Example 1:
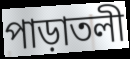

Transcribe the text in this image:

পাড়াতলী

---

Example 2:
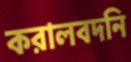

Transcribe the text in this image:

করালবদনি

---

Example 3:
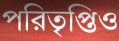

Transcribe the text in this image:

পরিতৃপ্তিও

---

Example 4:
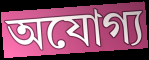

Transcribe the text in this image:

অযোগ্য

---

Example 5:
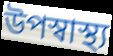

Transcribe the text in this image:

উপস্বাস্থ্য